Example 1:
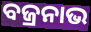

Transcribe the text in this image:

ବଜ୍ରନାଭ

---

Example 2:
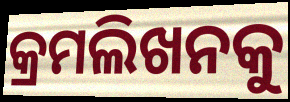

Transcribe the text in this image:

କ୍ରମଲିଖନକୁ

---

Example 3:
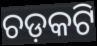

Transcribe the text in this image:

ଚଡ଼କଟି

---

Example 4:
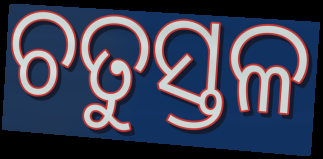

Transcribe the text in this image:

ଚତୁସ୍ତଳ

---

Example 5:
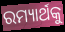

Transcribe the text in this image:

ରମ୍ୟାର୍ଥକୁ